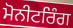
ਮੋਨੀਟਰਿੰਗ